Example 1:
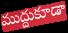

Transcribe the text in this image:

ముద్దుకూడా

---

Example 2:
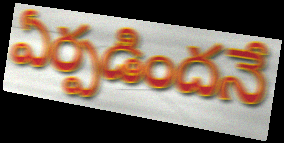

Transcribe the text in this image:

ఏర్పడిందనే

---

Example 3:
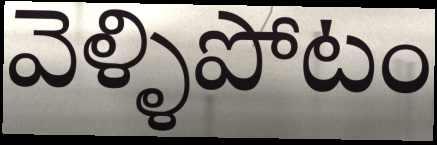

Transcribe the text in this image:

వెళ్ళిపోటం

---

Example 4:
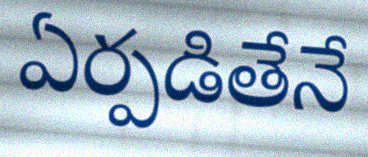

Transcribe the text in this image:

ఏర్పడితేనే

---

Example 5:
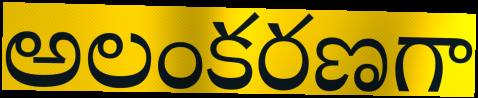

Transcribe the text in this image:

అలంకరణగా